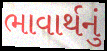
ભાવાર્થનું